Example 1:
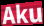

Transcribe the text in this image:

Aku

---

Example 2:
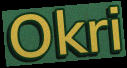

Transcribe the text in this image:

Okri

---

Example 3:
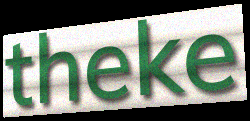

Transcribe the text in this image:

theke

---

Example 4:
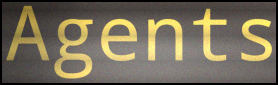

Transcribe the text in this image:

Agents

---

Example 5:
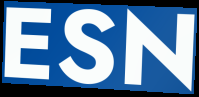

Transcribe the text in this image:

ESN